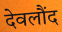
देवलौंद